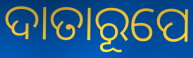
ଦାତାରୂପେ